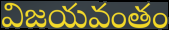
విజయవంతం